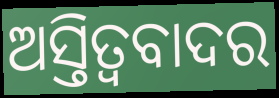
ଅସ୍ତିତ୍ବବାଦର